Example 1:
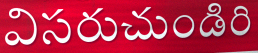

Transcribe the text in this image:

విసరుచుండిరి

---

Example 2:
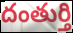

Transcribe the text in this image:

దంతుర్తి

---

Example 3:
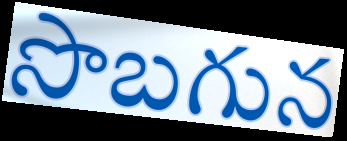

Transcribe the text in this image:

సొబగున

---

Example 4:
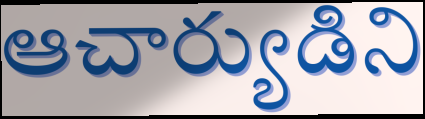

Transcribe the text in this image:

ఆచార్యుడిని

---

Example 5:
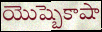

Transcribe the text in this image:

యొష్బెకాషా